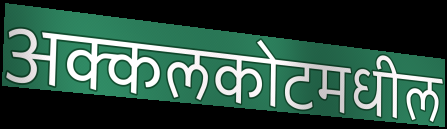
अक्कलकोटमधील